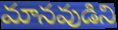
మానవుడిని